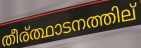
തീര്ത്ഥാടനത്തില്